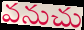
వనుచు